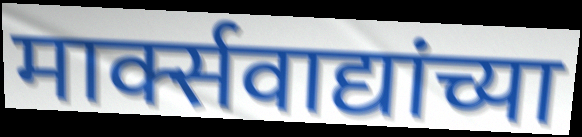
मार्क्सवाद्यांच्या